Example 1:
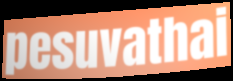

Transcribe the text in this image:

pesuvathai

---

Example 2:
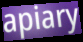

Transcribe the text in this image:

apiary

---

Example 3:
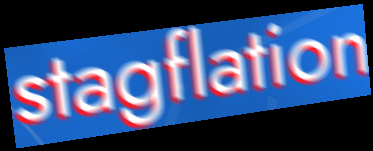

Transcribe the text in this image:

stagflation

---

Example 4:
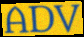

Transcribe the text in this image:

ADV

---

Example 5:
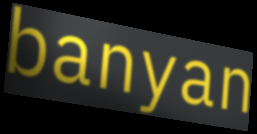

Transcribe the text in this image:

banyan